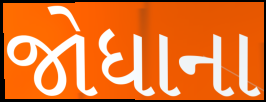
જોધાના